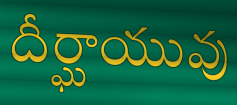
దీర్ఘాయువు